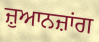
ਜ਼ੁਆਨਜ਼ਾਂਗ